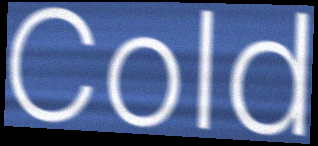
Cold